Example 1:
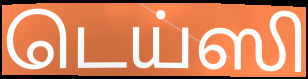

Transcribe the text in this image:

டெய்ஸி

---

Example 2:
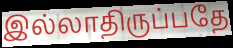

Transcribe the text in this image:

இல்லாதிருப்பதே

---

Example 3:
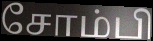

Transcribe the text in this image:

சோம்பி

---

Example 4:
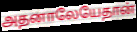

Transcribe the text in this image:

அதனாலேயேதான்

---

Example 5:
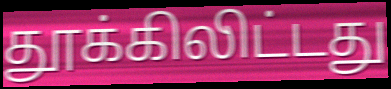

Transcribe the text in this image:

தூக்கிலிட்டது